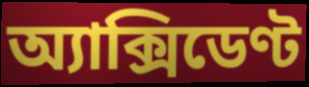
অ্যাক্সিডেণ্ট